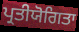
ਪ੍ਰਤੀਯੋਗਿਤਾ